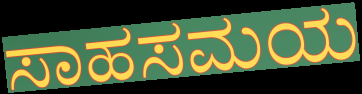
ಸಾಹಸಮಯ